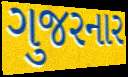
ગુજરનાર